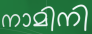
നാമിനി